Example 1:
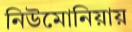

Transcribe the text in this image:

নিউমোনিয়ায়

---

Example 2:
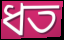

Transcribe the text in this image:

ধত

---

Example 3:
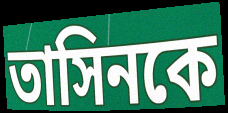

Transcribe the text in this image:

তাসিনকে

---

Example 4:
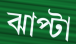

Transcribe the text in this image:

ঝাপ্টা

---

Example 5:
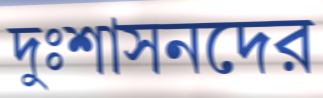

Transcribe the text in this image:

দুঃশাসনদের